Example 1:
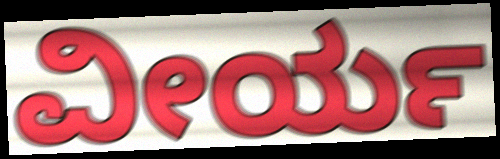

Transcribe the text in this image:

ವೀರ್ಯ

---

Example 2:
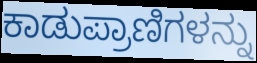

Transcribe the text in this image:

ಕಾಡುಪ್ರಾಣಿಗಳನ್ನು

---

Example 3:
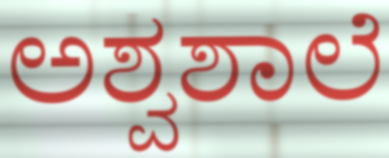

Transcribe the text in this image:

ಅಶ್ವಶಾಲೆ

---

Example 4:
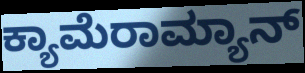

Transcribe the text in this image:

ಕ್ಯಾಮೆರಾಮ್ಯಾನ್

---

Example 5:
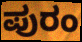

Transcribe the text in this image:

ಪುರಂ